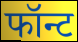
फॉन्ट